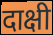
दाक्षी